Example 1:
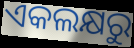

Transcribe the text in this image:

ଏକଲକ୍ଷରୁ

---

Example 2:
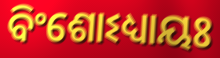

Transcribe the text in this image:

ବିଂଶୋଽଧ୍ୟାୟଃ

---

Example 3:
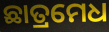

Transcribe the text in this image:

ଛାତ୍ରମେଧ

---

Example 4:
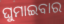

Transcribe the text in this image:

ଘୁମାଇବାର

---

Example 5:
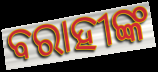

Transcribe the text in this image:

ବରାହୀଙ୍କ